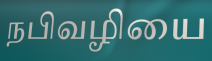
நபிவழியை